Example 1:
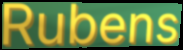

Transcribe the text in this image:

Rubens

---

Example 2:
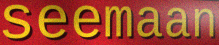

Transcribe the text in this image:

seemaan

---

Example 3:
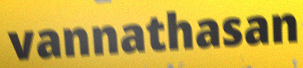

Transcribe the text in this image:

vannathasan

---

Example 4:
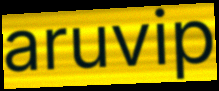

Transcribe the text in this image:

aruvip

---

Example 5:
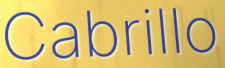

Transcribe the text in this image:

Cabrillo